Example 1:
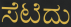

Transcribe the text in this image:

ಸೆಟೆದು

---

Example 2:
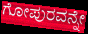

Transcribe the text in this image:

ಗೋಪುರವನ್ನೇ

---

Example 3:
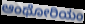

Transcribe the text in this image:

ಆಂಥೋರಿಯಂ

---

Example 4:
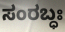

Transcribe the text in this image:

ಸಂರಬ್ಧಃ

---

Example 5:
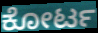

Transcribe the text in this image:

ಕೋರ್ಟ